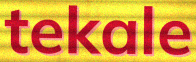
tekale